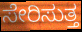
ಸೇರಿಸುತ್ತ